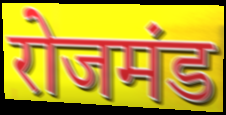
रोजमंड